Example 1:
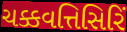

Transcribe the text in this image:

ચક્કવત્તિસિરિં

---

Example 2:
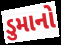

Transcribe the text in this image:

ડુમાનો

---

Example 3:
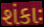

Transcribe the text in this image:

શંકાઃ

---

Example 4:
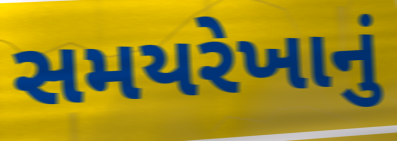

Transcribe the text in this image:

સમયરેખાનું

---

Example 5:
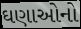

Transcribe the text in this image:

ઘણાઓનો